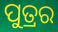
ପୁତ୍ରର